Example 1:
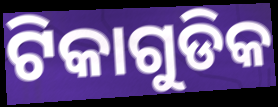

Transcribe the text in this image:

ଟିକାଗୁଡିକ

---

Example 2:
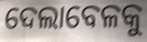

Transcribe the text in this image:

ଦେଲାବେଳକୁ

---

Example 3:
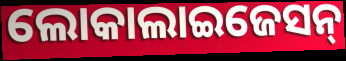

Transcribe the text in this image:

ଲୋକାଲାଇଜେସନ୍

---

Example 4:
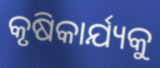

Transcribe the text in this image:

କୃଷିକାର୍ଯ୍ୟକୁ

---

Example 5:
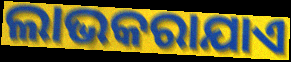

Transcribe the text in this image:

ଲାଭକରାଯାଏ